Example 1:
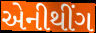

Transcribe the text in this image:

એનીથીંગ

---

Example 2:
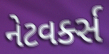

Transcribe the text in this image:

નેટવર્ક્સ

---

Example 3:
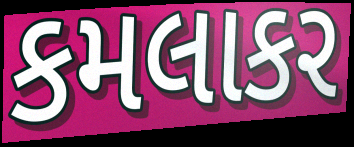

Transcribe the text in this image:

કમલાકર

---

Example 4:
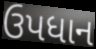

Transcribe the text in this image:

ઉપધાન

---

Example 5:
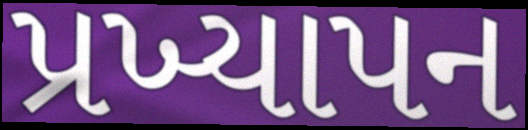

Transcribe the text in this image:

પ્રખ્યાપન